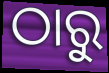
ଠାରୁ